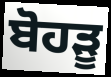
ਬੋਹੜੂ